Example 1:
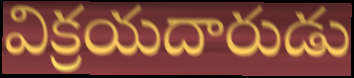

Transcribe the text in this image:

విక్రయదారుడు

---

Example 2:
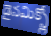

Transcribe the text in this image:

డైనమిక్స్లో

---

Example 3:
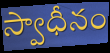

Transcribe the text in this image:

స్వాధీనం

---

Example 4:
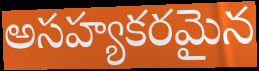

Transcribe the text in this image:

అసహ్యకరమైన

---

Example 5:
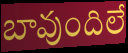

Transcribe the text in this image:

బావుందిలే